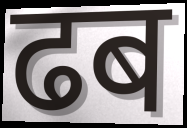
ढब